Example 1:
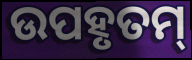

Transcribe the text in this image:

ଉପହୃତମ୍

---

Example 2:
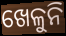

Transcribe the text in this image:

ଖେଳୁନି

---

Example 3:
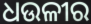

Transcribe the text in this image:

ଧଉଳୀର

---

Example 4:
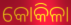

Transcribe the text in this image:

କୋକିଳା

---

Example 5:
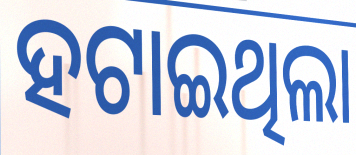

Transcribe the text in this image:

ହଟାଇଥିଲା